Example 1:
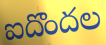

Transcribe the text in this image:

ఐదొందల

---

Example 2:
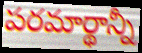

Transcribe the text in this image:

పరమార్థాన్నీ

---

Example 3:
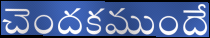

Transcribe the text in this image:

చెందకముందే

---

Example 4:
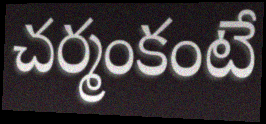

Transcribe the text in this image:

చర్మంకంటే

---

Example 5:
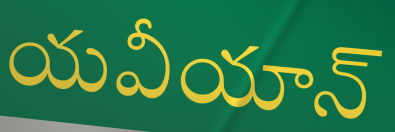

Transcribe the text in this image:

యవీయాన్